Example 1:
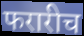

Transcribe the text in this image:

फरारीच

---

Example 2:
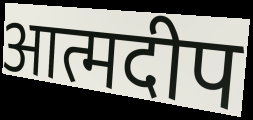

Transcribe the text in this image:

आत्मदीप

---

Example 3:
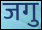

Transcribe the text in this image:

जगु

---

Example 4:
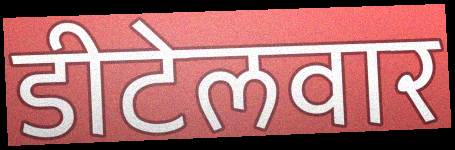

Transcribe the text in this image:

डीटेलवार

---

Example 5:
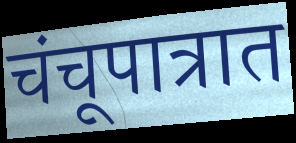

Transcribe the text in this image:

चंचूपात्रात